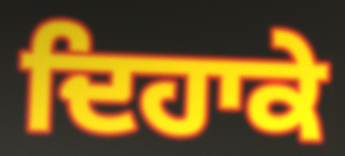
ਦਿਹਾਕੇ